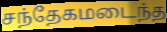
சந்தேகமடைந்த